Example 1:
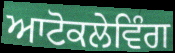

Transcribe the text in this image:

ਆਟੋਕਲੇਵਿੰਗ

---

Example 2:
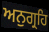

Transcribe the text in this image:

ਅਨੁਗ੍ਰਹਿ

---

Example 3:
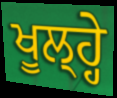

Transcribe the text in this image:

ਖੂਲ੍ਹ੍ਹੇ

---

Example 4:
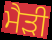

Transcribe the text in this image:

ਮੈੜੀ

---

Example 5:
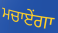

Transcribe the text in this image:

ਮਚਾਏਂਗਾ